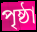
পৃষ্ঠা